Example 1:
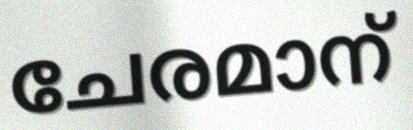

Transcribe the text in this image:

ചേരമാന്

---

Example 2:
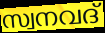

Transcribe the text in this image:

സ്വനവദ്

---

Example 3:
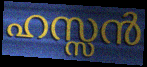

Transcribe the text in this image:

ഹസ്സൻ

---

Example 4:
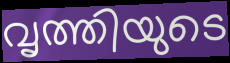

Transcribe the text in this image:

വൃത്തിയുടെ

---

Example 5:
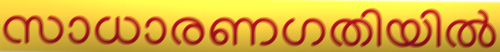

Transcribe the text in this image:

സാധാരണഗതിയിൽ